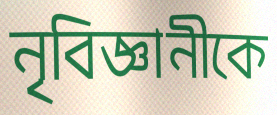
নৃবিজ্ঞানীকে